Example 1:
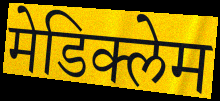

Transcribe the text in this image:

मेडिक्लेम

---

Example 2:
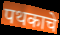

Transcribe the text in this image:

पथकाचे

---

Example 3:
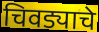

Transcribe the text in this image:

चिवड्याचे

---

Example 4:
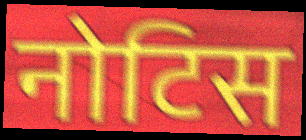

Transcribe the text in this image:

नोटिस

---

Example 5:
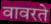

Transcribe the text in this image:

वावरते